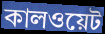
কালওয়েট